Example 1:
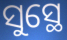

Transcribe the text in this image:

ସୁସ୍ଥେ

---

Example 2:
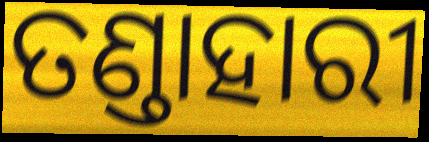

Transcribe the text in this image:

ତଣ୍ଡାହାରୀ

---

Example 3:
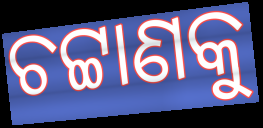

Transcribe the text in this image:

ଚଟ୍ଟାଣକୁ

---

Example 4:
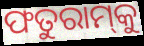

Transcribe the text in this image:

ଫତୁରାମ୍‌କୁ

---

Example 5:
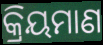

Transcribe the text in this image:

କ୍ରିୟମାଣ